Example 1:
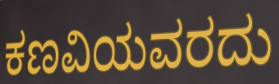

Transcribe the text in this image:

ಕಣವಿಯವರದು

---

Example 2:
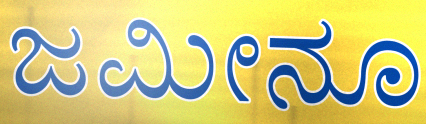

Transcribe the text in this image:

ಜಮೀನೂ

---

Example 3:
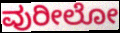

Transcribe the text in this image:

ವುರೀಲೋ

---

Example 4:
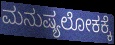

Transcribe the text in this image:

ಮನುಷ್ಯಲೋಕಕ್ಕೆ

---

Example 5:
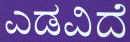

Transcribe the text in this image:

ಎಡವಿದೆ